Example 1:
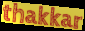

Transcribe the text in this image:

thakkar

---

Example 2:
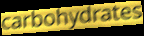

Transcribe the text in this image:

carbohydrates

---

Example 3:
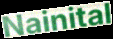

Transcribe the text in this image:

Nainital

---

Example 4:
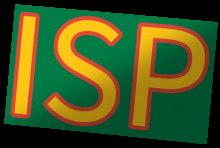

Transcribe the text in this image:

ISP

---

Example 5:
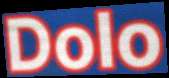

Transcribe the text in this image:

Dolo